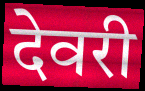
देवरी